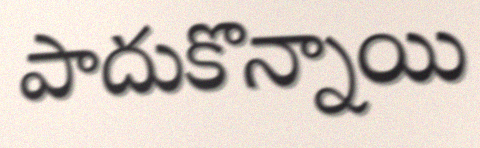
పాదుకొన్నాయి